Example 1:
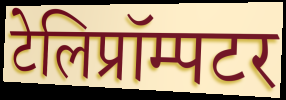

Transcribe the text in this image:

टेलिप्रॉम्पटर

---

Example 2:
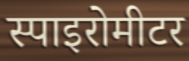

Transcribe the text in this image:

स्पाइरोमीटर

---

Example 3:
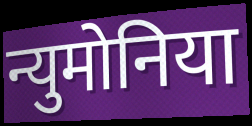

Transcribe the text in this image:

न्युमोनिया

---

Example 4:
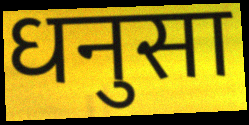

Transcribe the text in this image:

धनुसा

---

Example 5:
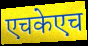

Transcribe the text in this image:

एचकेएच